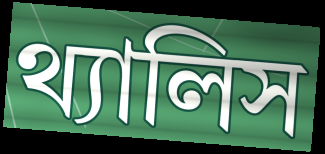
থ্যালিস